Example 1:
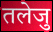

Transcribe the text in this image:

तलेजु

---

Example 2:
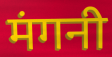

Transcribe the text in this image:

मंगनी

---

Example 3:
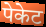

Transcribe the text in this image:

पेकेट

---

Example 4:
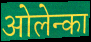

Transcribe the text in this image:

ओलेन्का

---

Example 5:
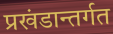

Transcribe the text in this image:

प्रखंडान्तर्गत